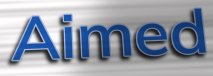
Aimed